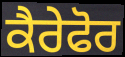
ਕੈਰੇਫੋਰ